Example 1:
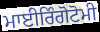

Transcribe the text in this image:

ਮਾਈਰਿੰਗੋਟੋਮੀ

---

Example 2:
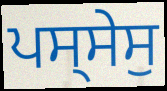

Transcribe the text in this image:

ਪਸ੍ਸੇਸੁ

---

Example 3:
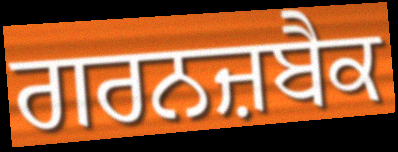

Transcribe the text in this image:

ਗਰਨਜ਼ਬੈਕ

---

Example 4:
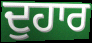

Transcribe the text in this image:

ਦੁਹਾਰ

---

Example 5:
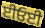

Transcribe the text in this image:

ਈਓਈ